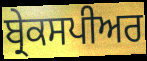
ਬ੍ਰੇਕਸਪੀਅਰ